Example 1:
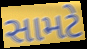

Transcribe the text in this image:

સામટે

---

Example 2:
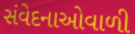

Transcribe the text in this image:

સંવેદનાઓવાળી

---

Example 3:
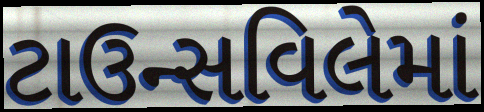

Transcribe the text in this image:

ટાઉન્સવિલેમાં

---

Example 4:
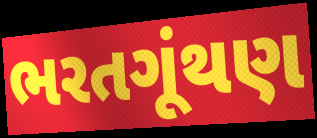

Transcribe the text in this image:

ભરતગૂંથણ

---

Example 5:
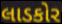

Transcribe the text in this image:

લાડકોર